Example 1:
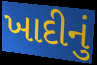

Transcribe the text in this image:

ખાદીનું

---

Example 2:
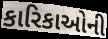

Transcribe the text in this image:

કારિકાઓની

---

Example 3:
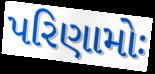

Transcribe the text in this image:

પરિણામોઃ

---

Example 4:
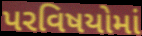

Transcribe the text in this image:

પરવિષયોમાં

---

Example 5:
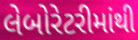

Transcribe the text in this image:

લેબોરેટરીમાંથી